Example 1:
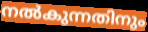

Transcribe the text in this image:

നൽകുന്നതിനും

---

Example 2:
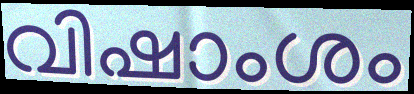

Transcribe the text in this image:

വിഷാംശം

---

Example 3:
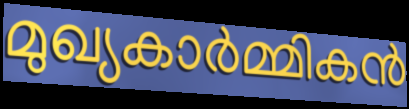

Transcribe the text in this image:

മുഖ്യകാർമ്മികൻ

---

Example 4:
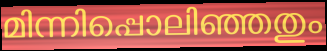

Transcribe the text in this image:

മിന്നിപ്പൊലിഞ്ഞതും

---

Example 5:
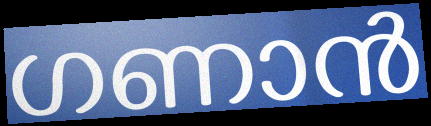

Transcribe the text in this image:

ഗണാൻ